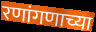
रणांगणाच्या